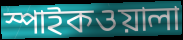
স্পাইকওয়ালা